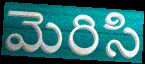
మెరిసి